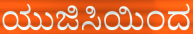
ಯುಜಿಸಿಯಿಂದ